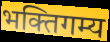
भक्तिगम्य